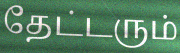
தேட்டரும்